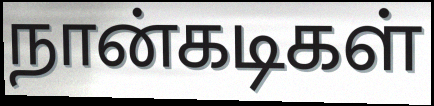
நான்கடிகள்